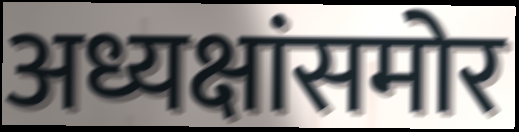
अध्यक्षांसमोर